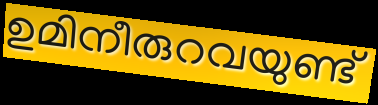
ഉമിനീരുറവയുണ്ട്